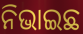
ନିଭାଇଛ